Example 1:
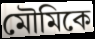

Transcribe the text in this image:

মৌমিকে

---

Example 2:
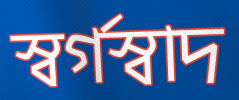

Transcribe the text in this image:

স্বর্গস্বাদ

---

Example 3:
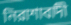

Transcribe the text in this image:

নিরাশাবাদী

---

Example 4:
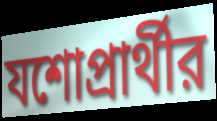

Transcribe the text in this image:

যশোপ্রার্থীর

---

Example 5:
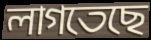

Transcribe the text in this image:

লাগতেছে